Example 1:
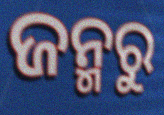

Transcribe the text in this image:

ଜନ୍ମରୁ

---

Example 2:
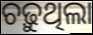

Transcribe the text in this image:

ଚଢ଼ୁଥିଲା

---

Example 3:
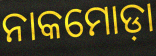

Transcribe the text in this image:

ନାକମୋଡ଼ା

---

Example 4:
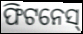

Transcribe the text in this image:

ଫିଟନେସ୍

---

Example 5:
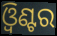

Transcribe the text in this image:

ଓ୍ଵିଣ୍ଟର